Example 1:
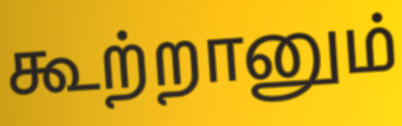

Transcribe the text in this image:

கூற்றானும்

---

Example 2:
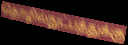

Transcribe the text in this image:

தொழில்நுட்பத்துக்கு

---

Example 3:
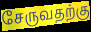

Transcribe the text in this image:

சேருவதற்கு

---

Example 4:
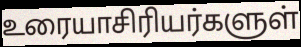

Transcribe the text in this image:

உரையாசிரியர்களுள்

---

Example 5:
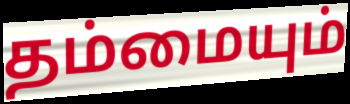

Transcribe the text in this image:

தம்மையும்